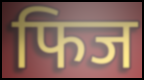
फिज